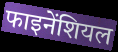
फाइनेंशियल